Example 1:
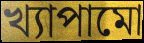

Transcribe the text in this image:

খ্যাপামো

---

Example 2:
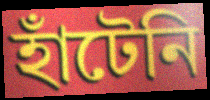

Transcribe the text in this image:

হাঁটেনি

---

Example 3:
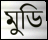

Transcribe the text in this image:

মুডি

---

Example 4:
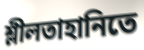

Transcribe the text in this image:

শ্লীলতাহানিতে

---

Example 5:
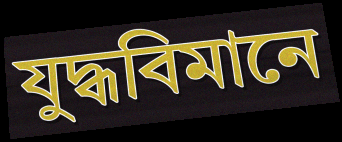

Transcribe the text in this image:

যুদ্ধবিমানে